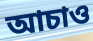
আচাও